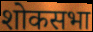
शोकसभा